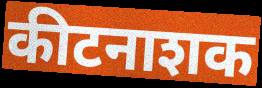
कीटनाशक